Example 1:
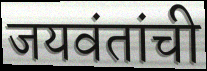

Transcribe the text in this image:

जयवंतांची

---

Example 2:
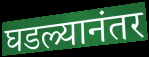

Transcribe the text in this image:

घडल्यानंतर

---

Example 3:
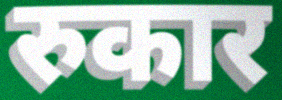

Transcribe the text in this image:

रुकार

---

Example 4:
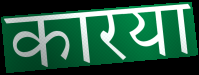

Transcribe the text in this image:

कारया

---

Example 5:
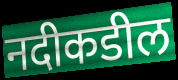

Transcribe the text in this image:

नदीकडील